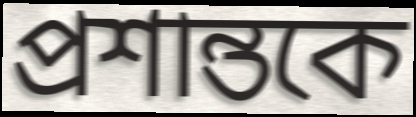
প্রশান্তকে